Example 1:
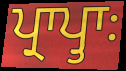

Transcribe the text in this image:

ਪ੍ਰਾਪ੍ਤਾਃ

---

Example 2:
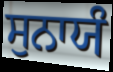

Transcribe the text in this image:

ਸੁਨਾਯੰ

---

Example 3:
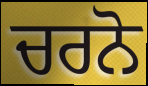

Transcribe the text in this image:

ਚਰਨੋ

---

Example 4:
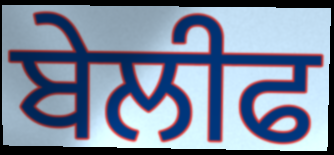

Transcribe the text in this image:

ਬੇਲੀਫ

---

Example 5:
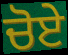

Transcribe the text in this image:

ਚੋਏ